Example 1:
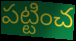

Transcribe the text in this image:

పట్టించ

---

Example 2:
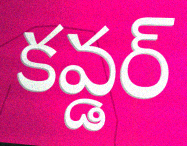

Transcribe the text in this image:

కవ్డర్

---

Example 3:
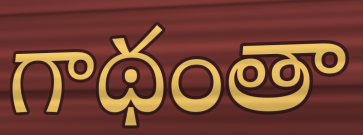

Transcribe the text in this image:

గాథంతా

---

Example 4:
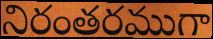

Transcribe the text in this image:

నిరంతరముగా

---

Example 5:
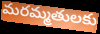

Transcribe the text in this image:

మరమ్మతులకు